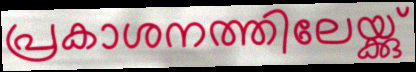
പ്രകാശനത്തിലേയ്ക്കു്